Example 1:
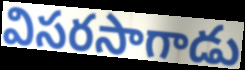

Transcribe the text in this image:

విసరసాగాడు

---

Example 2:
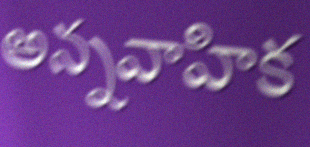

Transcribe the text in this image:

అన్నవాహిక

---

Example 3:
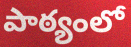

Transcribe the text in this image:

పాఠ్యంలో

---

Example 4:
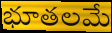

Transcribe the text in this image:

భూతలమే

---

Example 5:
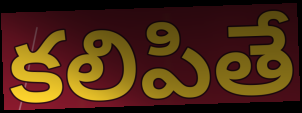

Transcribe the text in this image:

కలిపితే